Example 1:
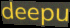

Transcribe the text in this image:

deepu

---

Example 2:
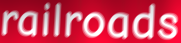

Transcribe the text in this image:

railroads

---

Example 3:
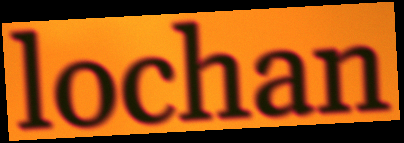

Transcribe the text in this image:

lochan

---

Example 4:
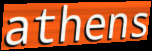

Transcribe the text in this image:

athens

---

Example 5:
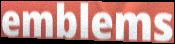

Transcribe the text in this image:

emblems